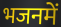
भजनमें